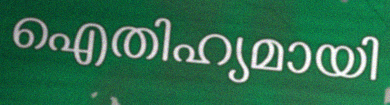
ഐതിഹ്യമായി